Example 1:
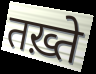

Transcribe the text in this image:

तख़्ते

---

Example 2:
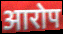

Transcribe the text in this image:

आरोप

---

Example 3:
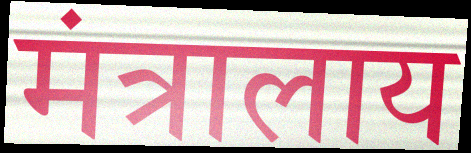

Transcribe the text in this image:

मंत्रालाय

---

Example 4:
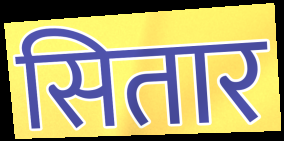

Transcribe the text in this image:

सितार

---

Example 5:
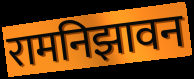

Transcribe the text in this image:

रामनिझावन